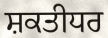
ਸ਼ਕਤੀਧਰ